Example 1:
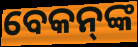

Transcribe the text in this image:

ବେକନ୍‌ଙ୍କ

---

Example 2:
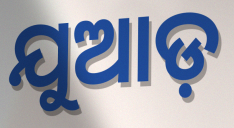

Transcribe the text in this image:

ଯୁଆଡ଼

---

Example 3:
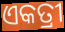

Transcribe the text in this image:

ଏକତ୍ରୀ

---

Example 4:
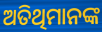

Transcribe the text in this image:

ଅତିଥିମାନଙ୍କ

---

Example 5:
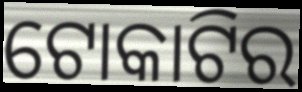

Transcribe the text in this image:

ଟୋକାଟିର